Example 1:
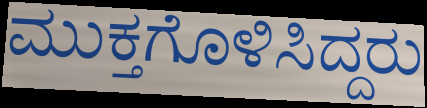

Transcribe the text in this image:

ಮುಕ್ತಗೊಳಿಸಿದ್ದರು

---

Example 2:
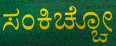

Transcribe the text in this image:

ಸಂಕಿಚ್ಚೋ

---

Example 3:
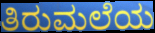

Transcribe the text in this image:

ತಿರುಮಲೆಯ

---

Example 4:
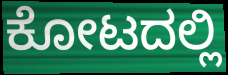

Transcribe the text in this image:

ಕೋಟದಲ್ಲಿ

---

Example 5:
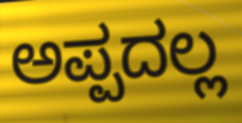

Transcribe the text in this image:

ಅಪ್ಪದಲ್ಲ